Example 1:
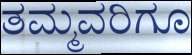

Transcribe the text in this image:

ತಮ್ಮವರಿಗೂ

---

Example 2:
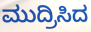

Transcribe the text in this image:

ಮುದ್ರಿಸಿದ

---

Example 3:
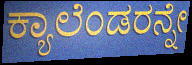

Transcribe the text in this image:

ಕ್ಯಾಲೆಂಡರನ್ನೇ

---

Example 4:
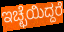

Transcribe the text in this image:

ಇಚ್ಛೆಯಿದ್ದರೆ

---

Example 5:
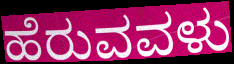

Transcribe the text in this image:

ಹೆರುವವಳು